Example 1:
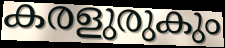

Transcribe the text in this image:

കരളുരുകും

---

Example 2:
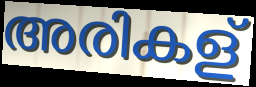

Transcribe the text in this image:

അരികള്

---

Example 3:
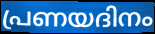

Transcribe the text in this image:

പ്രണയദിനം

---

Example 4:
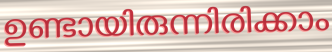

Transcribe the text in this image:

ഉണ്ടായിരുന്നിരിക്കാം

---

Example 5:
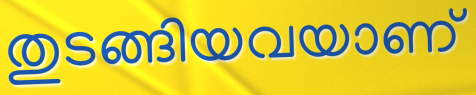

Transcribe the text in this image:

തുടങ്ങിയവയാണ്